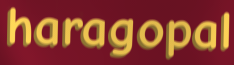
haragopal